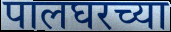
पालघरच्या